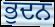
ਭੁਦਨ